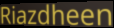
Riazdheen